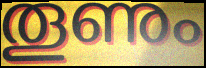
തൂണും